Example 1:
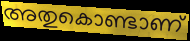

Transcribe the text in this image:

അതുകൊണ്ടാണ്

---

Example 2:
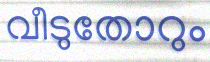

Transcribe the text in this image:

വീടുതോറും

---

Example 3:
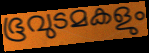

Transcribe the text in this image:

ഭൂവുടമകളും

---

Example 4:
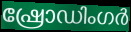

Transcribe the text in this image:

ഷ്രോഡിംഗർ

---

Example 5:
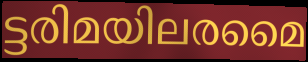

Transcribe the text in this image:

ട്ടരിമയിലരമൈ